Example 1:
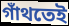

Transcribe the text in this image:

গাঁথতেই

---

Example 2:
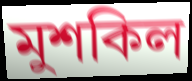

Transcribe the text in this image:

মুশকিল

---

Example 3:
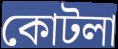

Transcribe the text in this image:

কোটলা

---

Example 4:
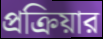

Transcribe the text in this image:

প্রক্রিয়ার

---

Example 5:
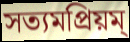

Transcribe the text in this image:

সত্যমপ্রিয়ম্